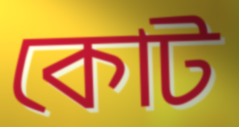
কোট